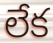
లేక